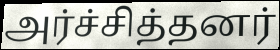
அர்ச்சித்தனர்